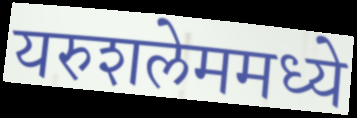
यरुशलेममध्ये